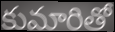
కుమారితో